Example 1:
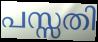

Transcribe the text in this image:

പസ്സതി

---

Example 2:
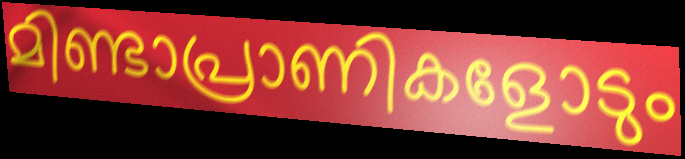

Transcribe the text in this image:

മിണ്ടാപ്രാണികളോടും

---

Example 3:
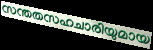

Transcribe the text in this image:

സന്തതസഹചാരിയുമായ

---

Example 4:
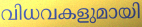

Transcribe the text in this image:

വിധവകളുമായി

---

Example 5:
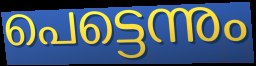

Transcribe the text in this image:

പെട്ടെന്നും